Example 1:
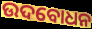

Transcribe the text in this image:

ଉଦବୋଧନ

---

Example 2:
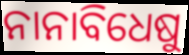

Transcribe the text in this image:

ନାନାବିଧେଷୁ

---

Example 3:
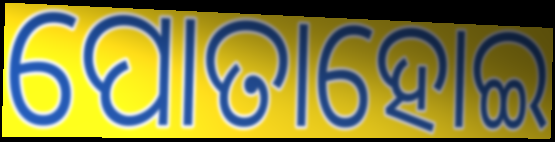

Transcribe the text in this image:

ପୋତାହୋଇ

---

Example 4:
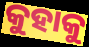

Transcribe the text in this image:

କୁହାକୁ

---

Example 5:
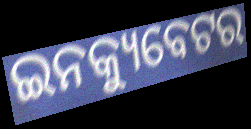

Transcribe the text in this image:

ଇନକ୍ୟୁବେଟର